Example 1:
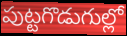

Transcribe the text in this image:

పుట్టగొడుగుల్లో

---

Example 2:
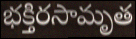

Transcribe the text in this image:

భక్తిరసామృత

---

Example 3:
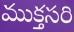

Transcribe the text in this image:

ముక్తసరి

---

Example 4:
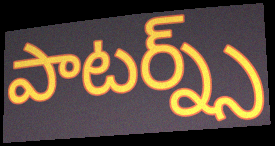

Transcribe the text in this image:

పాటర్న్స్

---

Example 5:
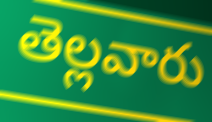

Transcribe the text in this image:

తెల్లవారు